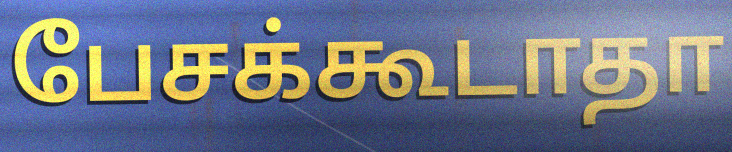
பேசக்கூடாதா